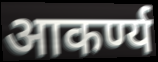
आकर्ण्य